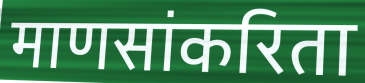
माणसांकरिता